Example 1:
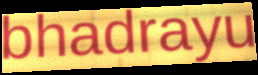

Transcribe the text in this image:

bhadrayu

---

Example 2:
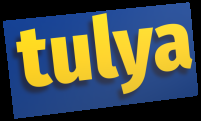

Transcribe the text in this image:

tulya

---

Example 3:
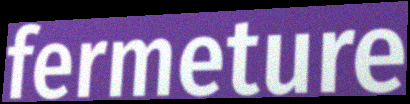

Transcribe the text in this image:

fermeture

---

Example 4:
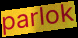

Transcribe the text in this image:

parlok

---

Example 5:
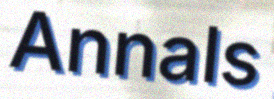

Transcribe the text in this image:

Annals